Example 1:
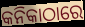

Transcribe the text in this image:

କନିକାଠାରେ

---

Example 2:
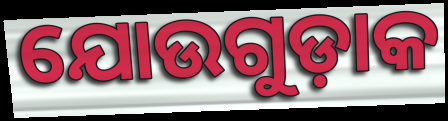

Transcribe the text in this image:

ଯୋଉଗୁଡ଼ାକ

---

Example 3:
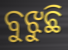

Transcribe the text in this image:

ବୁଝୁଛି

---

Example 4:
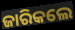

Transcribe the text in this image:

ଜାରିକଲେ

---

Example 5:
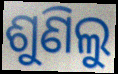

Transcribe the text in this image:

ଶୁଣିଲୁ